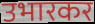
उभारकर